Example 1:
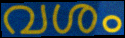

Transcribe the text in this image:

വശം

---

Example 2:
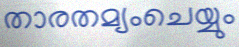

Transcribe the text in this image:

താരതമ്യംചെയ്യും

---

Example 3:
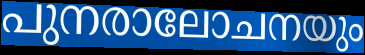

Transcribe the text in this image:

പുനരാലോചനയും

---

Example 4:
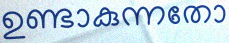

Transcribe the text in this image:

ഉണ്ടാകുന്നതോ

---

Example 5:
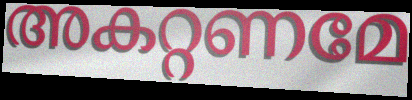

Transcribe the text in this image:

അകറ്റണമേ